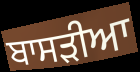
ਬਾਸੜੀਆ